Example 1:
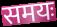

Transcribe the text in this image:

समयः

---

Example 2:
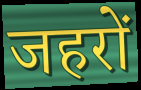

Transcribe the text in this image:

जहरों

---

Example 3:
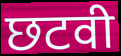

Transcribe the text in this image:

छटवी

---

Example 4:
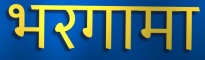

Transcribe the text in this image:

भरगामा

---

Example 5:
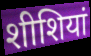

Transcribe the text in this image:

शीशियां